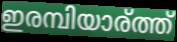
ഇരമ്പിയാര്ത്ത്